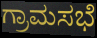
ಗ್ರಾಮಸಭೆ